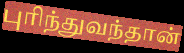
புரிந்துவந்தான்